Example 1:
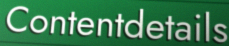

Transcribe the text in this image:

Contentdetails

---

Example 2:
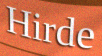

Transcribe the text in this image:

Hirde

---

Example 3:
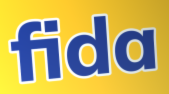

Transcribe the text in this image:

fida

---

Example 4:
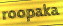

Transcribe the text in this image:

roopaka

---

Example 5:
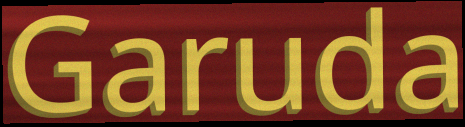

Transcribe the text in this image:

Garuda